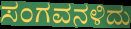
ಸಂಗವನಳಿದು